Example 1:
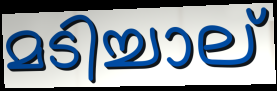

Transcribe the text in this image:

മടിച്ചാല്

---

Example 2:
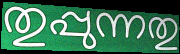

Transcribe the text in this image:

തുപ്പുന്നതു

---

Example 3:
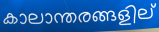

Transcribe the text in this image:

കാലാന്തരങ്ങളില്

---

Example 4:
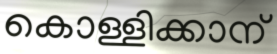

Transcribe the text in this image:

കൊള്ളിക്കാന്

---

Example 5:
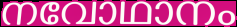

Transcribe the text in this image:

നവോഥാനം